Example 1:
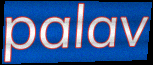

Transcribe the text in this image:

palav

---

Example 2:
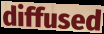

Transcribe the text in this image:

diffused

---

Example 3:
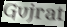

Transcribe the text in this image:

Gujrat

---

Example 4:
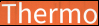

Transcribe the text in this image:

Thermo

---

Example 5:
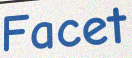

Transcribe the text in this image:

Facet